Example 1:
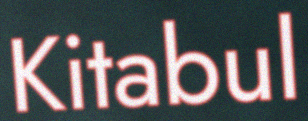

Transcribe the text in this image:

Kitabul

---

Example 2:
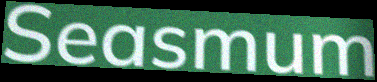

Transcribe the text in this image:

Seasmum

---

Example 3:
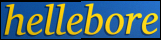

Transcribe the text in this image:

hellebore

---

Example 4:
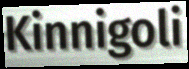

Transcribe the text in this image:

Kinnigoli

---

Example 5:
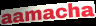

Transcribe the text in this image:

aamacha